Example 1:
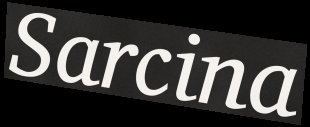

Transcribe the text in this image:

Sarcina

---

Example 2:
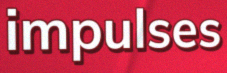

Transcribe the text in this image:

impulses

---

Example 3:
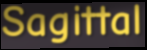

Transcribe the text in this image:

Sagittal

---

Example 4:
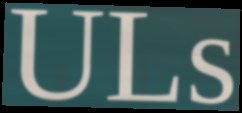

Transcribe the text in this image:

ULs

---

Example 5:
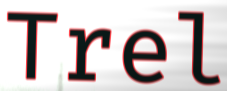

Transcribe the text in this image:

Trel